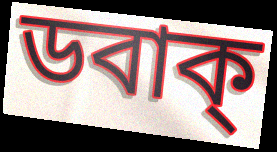
ডবাক্